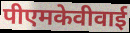
पीएमकेवीवाई